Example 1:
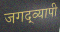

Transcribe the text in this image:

जगद्व्यापी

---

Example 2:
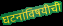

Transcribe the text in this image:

घटनांविषयीची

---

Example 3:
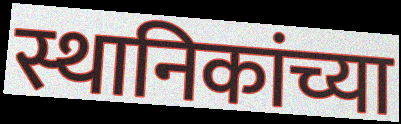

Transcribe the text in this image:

स्थानिकांच्या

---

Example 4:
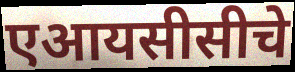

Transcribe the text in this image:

एआयसीसीचे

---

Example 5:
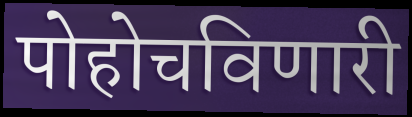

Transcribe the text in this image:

पोहोचविणारी